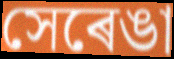
সেৰেঙা